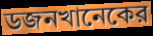
ডজনখানেকের